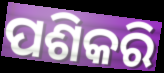
ପଶିକରି